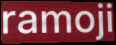
ramoji